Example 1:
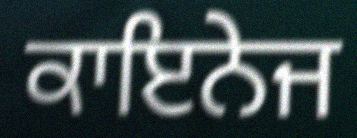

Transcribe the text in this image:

ਕਾਇਨੇਜ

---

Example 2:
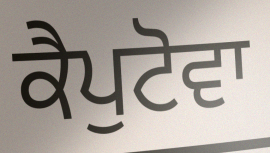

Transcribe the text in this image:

ਕੈਪੁਟੋਵਾ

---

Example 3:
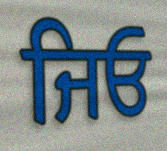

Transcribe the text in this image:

ਜਿਓ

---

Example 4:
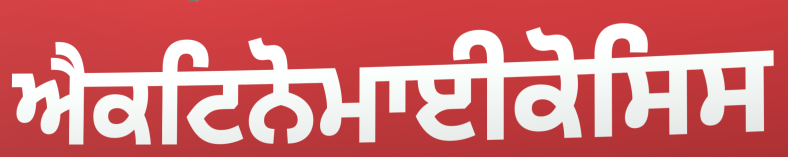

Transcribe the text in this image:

ਐਕਟਿਨੋਮਾਈਕੋਸਿਸ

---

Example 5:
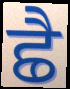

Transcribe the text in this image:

ਛੈ